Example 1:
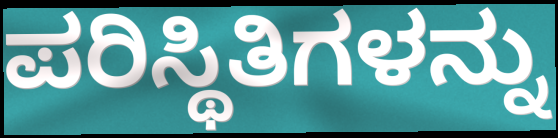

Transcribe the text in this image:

ಪರಿಸ್ಥಿತಿಗಳನ್ನು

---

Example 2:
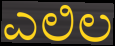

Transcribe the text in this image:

ಎಲಿಲ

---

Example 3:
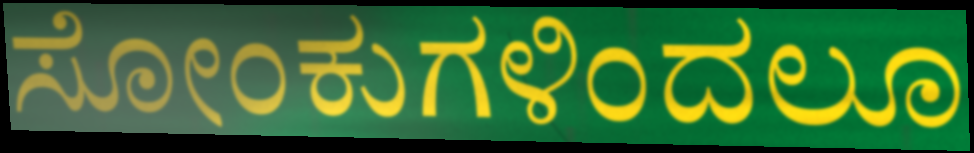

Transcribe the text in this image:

ಸೋಂಕುಗಳಿಂದಲೂ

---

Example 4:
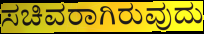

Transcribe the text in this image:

ಸಚಿವರಾಗಿರುವುದು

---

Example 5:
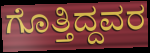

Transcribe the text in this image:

ಗೊತ್ತಿದ್ದವರ